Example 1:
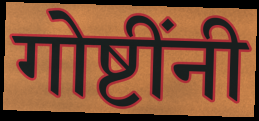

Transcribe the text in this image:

गोष्टींनी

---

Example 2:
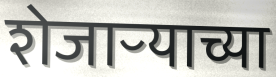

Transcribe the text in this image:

शेजाऱ्याच्या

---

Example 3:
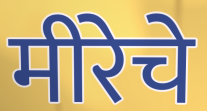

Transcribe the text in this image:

मीरेचे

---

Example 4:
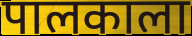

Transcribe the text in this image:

पालकाला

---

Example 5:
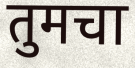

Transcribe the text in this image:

तुमचा